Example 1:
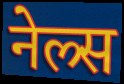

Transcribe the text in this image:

नेल्स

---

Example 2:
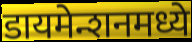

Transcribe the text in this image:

डायमेन्शनमध्ये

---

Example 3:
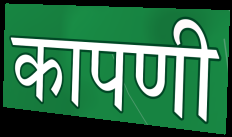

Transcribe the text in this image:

कापणी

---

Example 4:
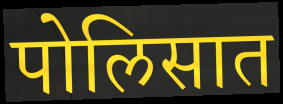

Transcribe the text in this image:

पोलिसात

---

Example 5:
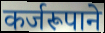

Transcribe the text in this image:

कर्जरूपाने